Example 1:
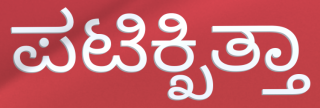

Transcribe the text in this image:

ಪಟಿಕ್ಖಿತ್ತಾ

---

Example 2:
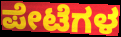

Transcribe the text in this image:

ಪೇಟೆಗಳ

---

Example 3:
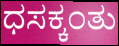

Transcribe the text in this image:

ಧಸಕ್ಕಂತು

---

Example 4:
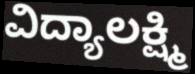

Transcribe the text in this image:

ವಿದ್ಯಾಲಕ್ಷ್ಮಿ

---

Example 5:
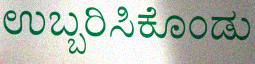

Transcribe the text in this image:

ಉಬ್ಬರಿಸಿಕೊಂಡು